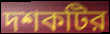
দশকটির